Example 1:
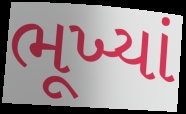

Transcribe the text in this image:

ભૂખ્યાં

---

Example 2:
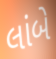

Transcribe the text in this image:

લાંબે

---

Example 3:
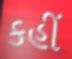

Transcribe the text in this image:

કહીં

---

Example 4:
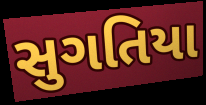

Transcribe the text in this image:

સુગતિયા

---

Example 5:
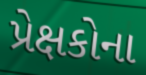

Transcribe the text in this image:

પ્રેક્ષકોના